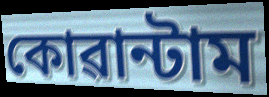
কোৱান্টাম